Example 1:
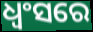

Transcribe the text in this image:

ଧ୍ୱଂସରେ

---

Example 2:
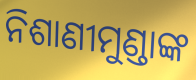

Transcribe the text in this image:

ନିଶାଣୀମୁଣ୍ଡାଙ୍କ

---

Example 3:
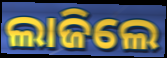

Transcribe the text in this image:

ଲାଜିଲେ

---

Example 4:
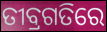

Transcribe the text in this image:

ତୀବ୍ରଗତିରେ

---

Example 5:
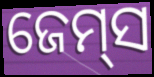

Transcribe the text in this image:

ଜେମ୍‌ସ